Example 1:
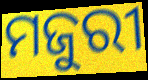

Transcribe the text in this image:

ମଜୁରୀ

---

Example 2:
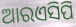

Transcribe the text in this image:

ଆରଏସିପି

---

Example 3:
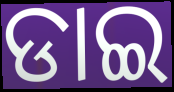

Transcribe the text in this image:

ଡାଇ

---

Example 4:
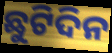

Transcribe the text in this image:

ଛୁଟିଦିନ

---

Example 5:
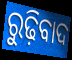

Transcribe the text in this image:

ରୁଢ଼ିବାଦ